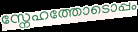
സ്നേഹത്തോടൊപ്പം